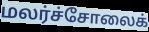
மலர்ச்சோலைக்